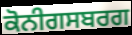
ਕੋਨੀਗਸਬਰਗ